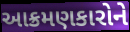
આક્રમણકારોને